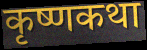
कृष्णकथा